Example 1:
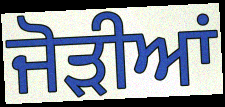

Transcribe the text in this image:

ਜੋਡ਼ੀਆਂ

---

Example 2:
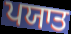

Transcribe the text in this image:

ਪਯਾਤ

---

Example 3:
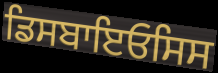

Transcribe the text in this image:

ਡਿਸਬਾਇਓਸਿਸ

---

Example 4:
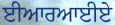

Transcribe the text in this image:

ਈਆਰਆਈਏ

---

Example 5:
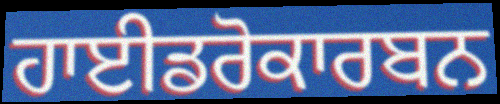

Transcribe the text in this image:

ਹਾਈਡਰੋਕਾਰਬਨ